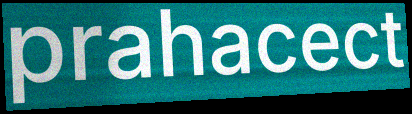
prahacect